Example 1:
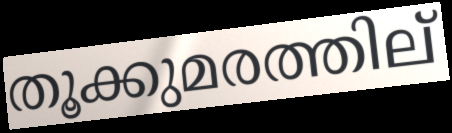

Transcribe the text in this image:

തൂക്കുമരത്തില്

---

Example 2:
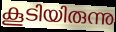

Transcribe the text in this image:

കൂടിയിരുന്നു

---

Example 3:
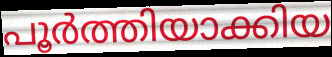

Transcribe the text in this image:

പൂർത്തിയാക്കിയ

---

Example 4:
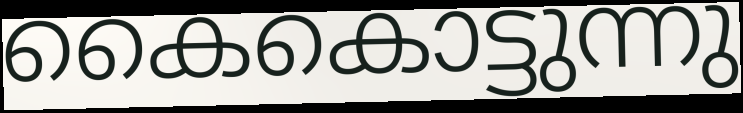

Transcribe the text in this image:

കൈകൊട്ടുന്നു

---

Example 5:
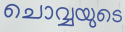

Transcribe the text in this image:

ചൊവ്വയുടെ